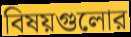
বিষয়গুলোর